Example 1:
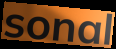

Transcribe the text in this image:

sonal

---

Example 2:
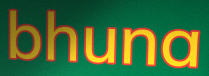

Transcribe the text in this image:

bhuna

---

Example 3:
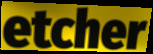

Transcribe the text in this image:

etcher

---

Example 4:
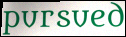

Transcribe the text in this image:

pursued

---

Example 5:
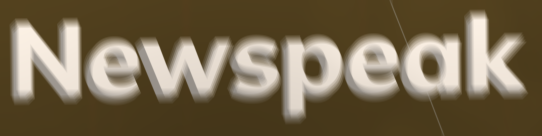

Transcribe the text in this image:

Newspeak